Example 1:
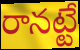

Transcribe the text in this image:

రానట్టే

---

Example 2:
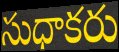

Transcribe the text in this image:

సుధాకరు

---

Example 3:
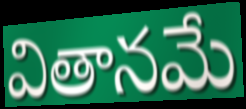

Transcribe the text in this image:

వితానమే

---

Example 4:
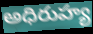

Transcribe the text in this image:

అధిరుహ్య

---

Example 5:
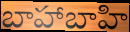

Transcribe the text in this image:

బాహాబాహి